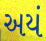
અયં